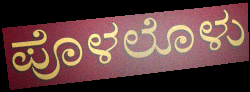
ಪೊಳಲೊಳು